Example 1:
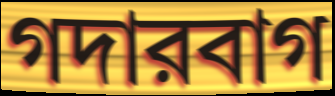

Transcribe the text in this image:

গদারবাগ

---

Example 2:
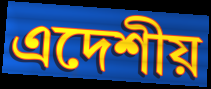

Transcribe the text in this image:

এদেশীয়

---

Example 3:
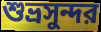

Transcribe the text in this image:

শুভ্রসুন্দর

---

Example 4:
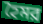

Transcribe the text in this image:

হৈমর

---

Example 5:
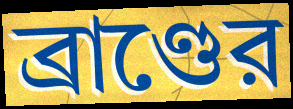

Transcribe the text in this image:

ব্রাণ্ডের